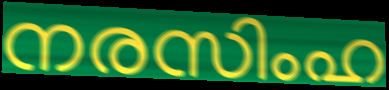
നരസിംഹ